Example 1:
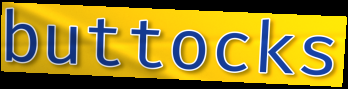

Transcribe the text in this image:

buttocks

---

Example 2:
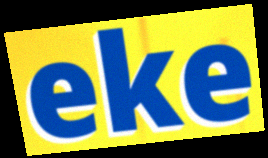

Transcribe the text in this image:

eke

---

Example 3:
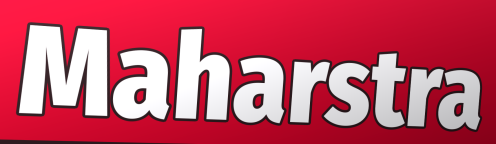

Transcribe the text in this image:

Maharstra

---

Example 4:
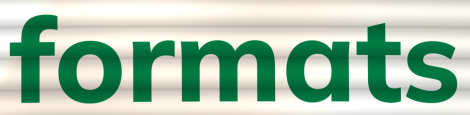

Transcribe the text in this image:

formats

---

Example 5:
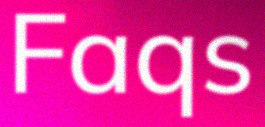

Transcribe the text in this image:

Faqs